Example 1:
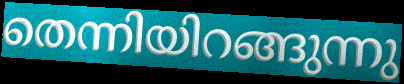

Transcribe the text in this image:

തെന്നിയിറങ്ങുന്നു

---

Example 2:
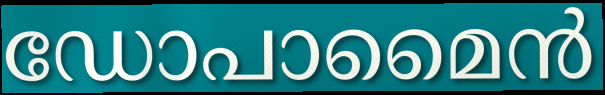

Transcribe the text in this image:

ഡോപാമൈൻ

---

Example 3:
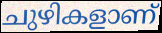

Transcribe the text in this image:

ചുഴികളാണ്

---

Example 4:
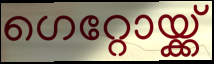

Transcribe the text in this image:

ഗെറ്റോയ്ക്ക്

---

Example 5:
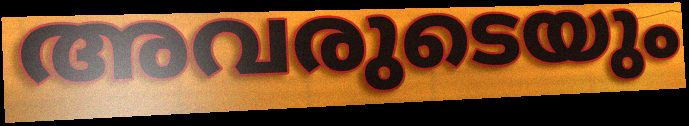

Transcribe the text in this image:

അവരുടെയും